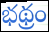
భథ్రం